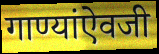
गाण्यांऐवजी